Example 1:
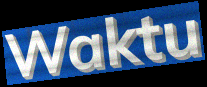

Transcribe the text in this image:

Waktu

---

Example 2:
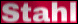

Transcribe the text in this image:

Stahl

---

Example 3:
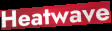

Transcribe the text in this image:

Heatwave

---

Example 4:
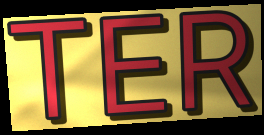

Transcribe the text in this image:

TER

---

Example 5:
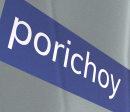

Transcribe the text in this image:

porichoy